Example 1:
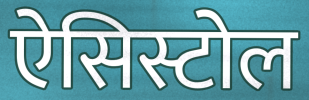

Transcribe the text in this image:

ऐसिस्टोल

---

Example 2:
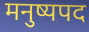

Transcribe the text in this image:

मनुष्यपद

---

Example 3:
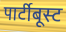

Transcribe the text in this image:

पार्टीबूस्ट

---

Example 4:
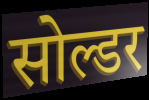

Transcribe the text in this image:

सोल्डर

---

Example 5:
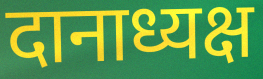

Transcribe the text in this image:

दानाध्यक्ष